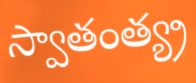
స్వాతంత్య్ర